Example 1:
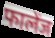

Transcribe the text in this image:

फालेंज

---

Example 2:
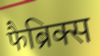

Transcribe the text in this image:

फैब्रिक्स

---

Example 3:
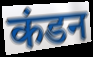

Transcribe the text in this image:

कंडन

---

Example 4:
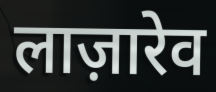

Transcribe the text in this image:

लाज़ारेव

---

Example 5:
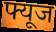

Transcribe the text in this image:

फ्यूज